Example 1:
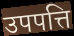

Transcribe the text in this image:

उपपत्ति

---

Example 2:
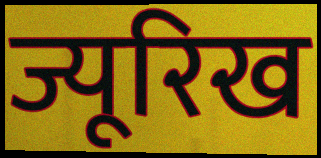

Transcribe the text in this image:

ज्यूरिख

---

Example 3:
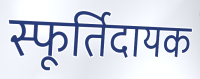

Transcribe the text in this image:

स्फूर्तिदायक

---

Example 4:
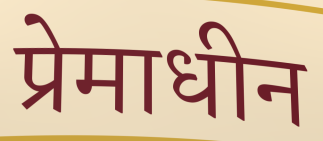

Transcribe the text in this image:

प्रेमाधीन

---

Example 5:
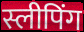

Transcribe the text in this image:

स्लीपिंग